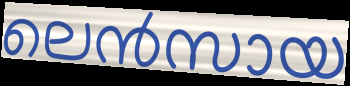
ലെൻസായ